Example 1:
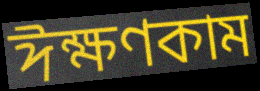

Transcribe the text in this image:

ঈক্ষণকাম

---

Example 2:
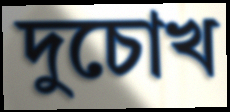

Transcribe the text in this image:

দুচোখ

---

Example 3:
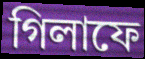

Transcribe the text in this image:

গিলাফে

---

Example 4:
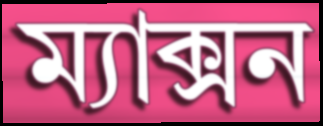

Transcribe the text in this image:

ম্যাক্সন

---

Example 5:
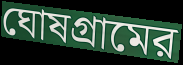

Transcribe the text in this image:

ঘোষগ্রামের